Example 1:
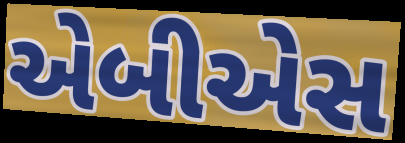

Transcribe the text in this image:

એબીએસ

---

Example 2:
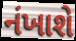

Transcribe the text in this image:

નંખાશે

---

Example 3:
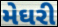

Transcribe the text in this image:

મેઘરી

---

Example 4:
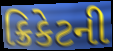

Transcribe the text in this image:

ક્રિકેટની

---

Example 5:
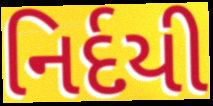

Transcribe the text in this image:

નિર્દયી